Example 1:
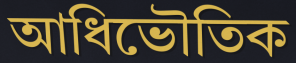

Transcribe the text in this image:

আধিভৌতিক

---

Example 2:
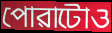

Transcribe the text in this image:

পোৱাটোও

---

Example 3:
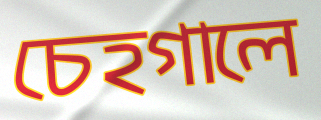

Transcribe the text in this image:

চেহগালে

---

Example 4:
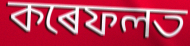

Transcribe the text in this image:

কৰেফলত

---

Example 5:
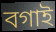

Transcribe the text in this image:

বগাই